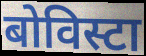
बोविस्टा